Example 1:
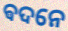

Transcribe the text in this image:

ଵଦନେ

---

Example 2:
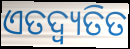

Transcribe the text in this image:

ଏତଦ୍ବ୍ୟତିତ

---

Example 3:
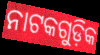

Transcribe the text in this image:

ନାଟକଗୁଡ଼ିକ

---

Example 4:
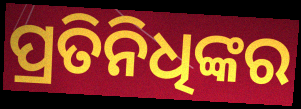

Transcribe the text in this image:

ପ୍ରତିନିଧିଙ୍କର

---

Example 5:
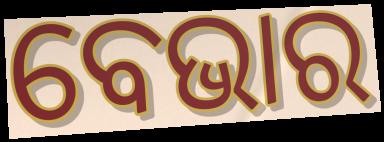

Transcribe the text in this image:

ବେଭାର